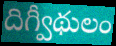
దిగ్వీథులం